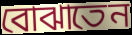
বোঝাতেন